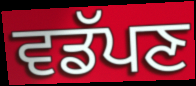
ਵਡੱਪਣ